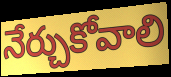
నేర్చుకోవాలి